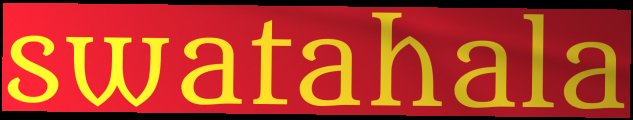
swatahala